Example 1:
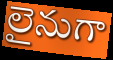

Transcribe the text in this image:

లైనుగా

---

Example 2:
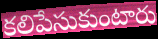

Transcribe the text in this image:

కలిపేసుకుంటారు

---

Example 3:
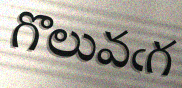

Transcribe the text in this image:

గొలువఁగ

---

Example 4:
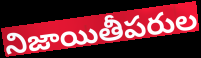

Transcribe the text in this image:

నిజాయితీపరుల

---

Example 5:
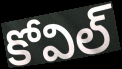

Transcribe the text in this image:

కోవిల్